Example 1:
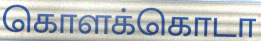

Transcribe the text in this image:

கொளக்கொடா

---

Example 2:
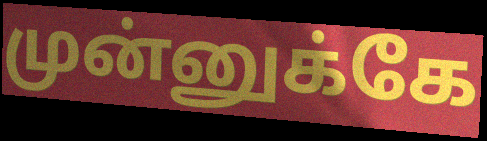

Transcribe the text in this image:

முன்னுக்கே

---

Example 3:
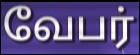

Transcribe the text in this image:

வேபர்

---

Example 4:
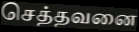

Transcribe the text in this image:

செத்தவனை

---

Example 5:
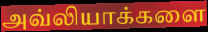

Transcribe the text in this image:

அவ்லியாக்களை